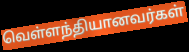
வெள்ளந்தியானவர்கள்